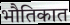
भौतिकात